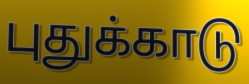
புதுக்காடு